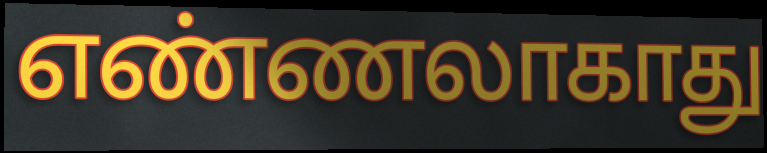
எண்ணலாகாது